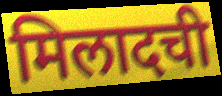
मिलादची